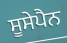
ਸੂਸੇਪੈਨ